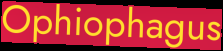
Ophiophagus